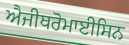
ਐਜੀਥਰੋਮਾਈਸਿਨ